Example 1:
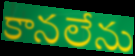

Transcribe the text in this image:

కానలేను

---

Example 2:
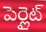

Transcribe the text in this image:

పెర్లైట్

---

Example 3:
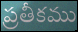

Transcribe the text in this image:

ప్రతీకము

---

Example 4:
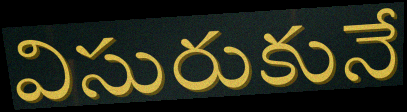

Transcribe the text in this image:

విసురుకునే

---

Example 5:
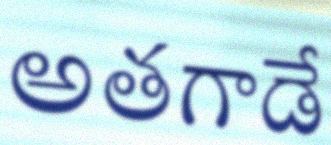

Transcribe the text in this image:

అతగాడే